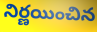
నిర్ణయించిన